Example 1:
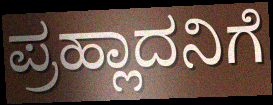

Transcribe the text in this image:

ಪ್ರಹ್ಲಾದನಿಗೆ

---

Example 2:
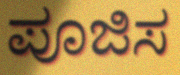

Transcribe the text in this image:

ಪೂಜಿಸ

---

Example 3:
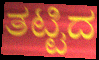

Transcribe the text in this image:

ತಟ್ಟಿದ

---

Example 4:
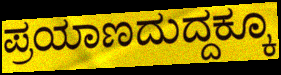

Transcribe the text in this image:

ಪ್ರಯಾಣದುದ್ದಕ್ಕೂ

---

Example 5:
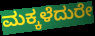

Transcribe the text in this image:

ಮಕ್ಕಳೆದುರೇ